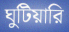
ঘুটিয়ারি